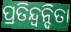
ପ୍ରତିନ୍ଦ୍ବନ୍ଦିତା